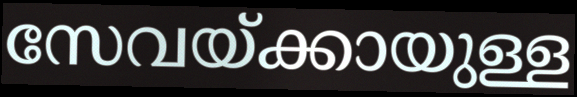
സേവയ്ക്കായുള്ള